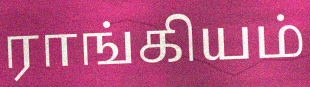
ராங்கியம்